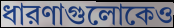
ধারণাগুলোকেও